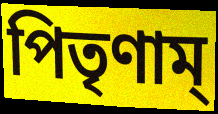
পিতৃণাম্